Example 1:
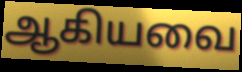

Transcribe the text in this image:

ஆகியவை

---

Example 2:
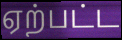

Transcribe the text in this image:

ஏற்பட்ட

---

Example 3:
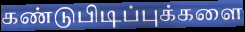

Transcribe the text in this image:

கண்டுபிடிப்புக்களை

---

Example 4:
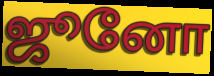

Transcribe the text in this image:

ஜூனோ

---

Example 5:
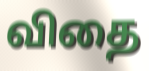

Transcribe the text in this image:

விதை